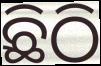
ଛିଠି